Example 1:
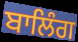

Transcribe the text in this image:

ਬਾਲਿੰਗ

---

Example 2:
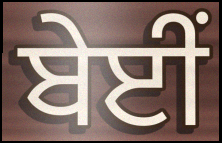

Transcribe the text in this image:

ਬੇਈਂ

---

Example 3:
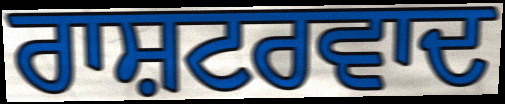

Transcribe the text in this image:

ਰਾਸ਼ਟਰਵਾਦ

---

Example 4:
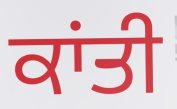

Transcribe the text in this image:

ਕਾਂਤੀ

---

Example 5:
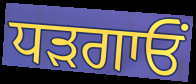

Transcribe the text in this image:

ਧੜਗਾਓਂ